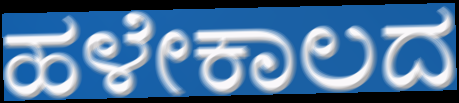
ಹಳೇಕಾಲದ